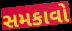
સમકાવો